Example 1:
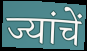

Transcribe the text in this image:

ज्यांचें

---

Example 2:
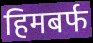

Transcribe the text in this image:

हिमबर्फ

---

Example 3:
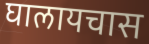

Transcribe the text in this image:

घालायचास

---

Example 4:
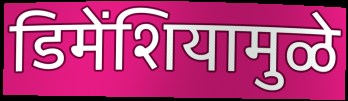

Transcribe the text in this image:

डिमेंशियामुळे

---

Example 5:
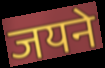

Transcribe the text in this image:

जयने